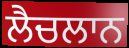
ਲੈਚਲਾਨ